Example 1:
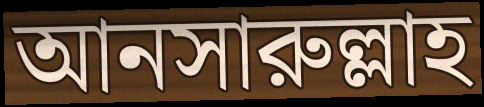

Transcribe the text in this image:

আনসারুল্লাহ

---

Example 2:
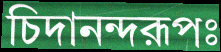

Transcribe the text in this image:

চিদানন্দরূপঃ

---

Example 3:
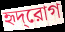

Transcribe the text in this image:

হৃদ্‌রোগ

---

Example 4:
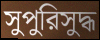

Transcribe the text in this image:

সুপুরিসুদ্ধ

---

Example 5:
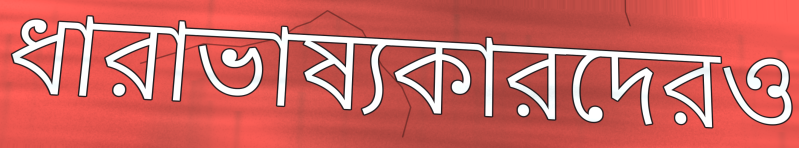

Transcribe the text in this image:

ধারাভাষ্যকারদেরও